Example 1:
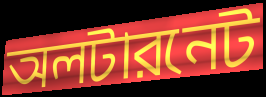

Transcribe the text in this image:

অলটারনেট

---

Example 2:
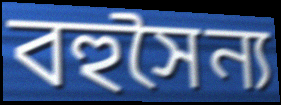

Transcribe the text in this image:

বহুসৈন্য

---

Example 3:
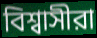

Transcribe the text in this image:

বিশ্বাসীরা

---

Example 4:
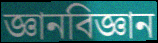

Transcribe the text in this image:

জ্ঞানবিজ্ঞান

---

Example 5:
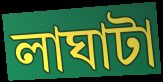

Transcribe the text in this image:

লাঘাটা